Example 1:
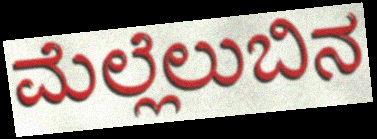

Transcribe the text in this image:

ಮೆಲ್ಲೆಲುಬಿನ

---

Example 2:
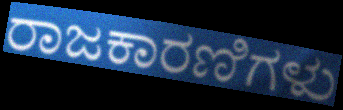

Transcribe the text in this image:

ರಾಜಕಾರಣಿಗಳು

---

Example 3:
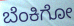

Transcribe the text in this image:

ಬೆಂಕಿಗೋ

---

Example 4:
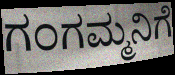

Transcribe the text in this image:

ಗಂಗಮ್ಮನಿಗೆ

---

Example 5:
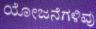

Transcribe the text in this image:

ಯೋಜನೆಗಳಿವು